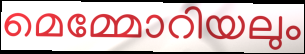
മെമ്മോറിയലും